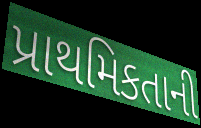
પ્રાથમિકતાની